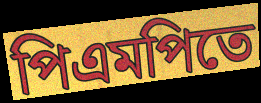
পিএমপিতে